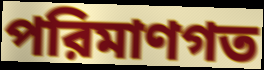
পরিমাণগত